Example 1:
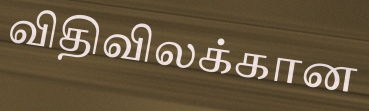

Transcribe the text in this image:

விதிவிலக்கான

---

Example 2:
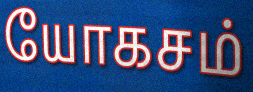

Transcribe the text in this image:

யோகசம்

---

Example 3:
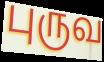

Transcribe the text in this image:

புருவ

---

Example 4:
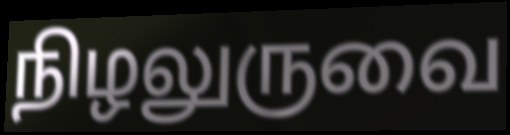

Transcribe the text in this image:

நிழலுருவை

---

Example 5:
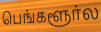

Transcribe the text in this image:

பெங்களூர்ல